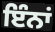
ਇੰਨਾਂ